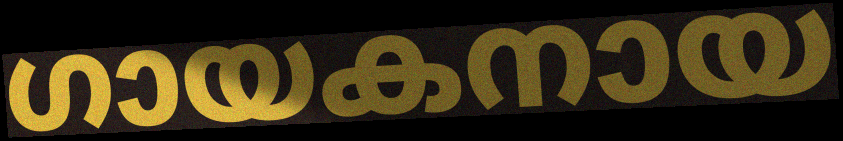
ഗായകനായ